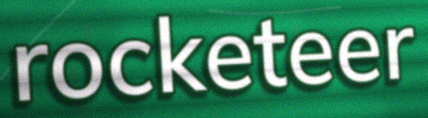
rocketeer